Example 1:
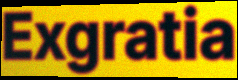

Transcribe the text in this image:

Exgratia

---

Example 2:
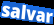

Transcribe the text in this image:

salvar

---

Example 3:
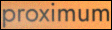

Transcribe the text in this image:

proximum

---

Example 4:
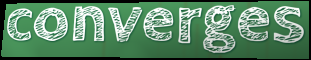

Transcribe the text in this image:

converges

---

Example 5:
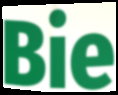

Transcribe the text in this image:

Bie